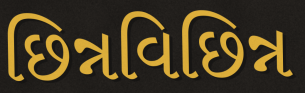
છિન્નવિછિન્ન